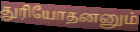
துரியோதனனும்